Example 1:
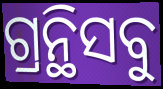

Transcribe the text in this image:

ଗ୍ରନ୍ଥିସବୁ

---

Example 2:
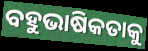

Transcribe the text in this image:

ବହୁଭାଷିକତାକୁ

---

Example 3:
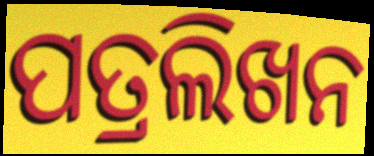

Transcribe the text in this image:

ପତ୍ରଲିଖନ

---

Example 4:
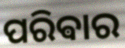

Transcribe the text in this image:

ପରିଵାର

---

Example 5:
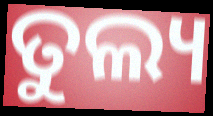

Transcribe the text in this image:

ତୁଲ୍ୟ